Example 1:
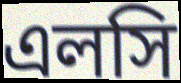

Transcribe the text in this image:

এলসি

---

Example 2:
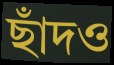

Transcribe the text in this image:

ছাঁদও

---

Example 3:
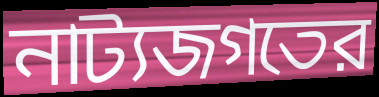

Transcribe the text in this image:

নাট্যজগতের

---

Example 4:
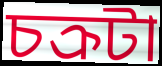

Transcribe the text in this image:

চক্রটা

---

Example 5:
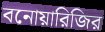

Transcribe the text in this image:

বনোয়ারিজির